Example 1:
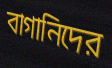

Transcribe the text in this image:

বাগানিদের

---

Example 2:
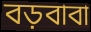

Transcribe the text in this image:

বড়বাবা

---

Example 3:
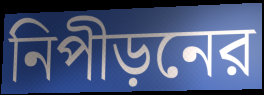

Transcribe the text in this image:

নিপীড়নের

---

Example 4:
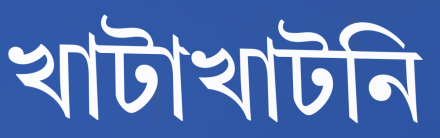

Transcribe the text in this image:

খাটাখাটনি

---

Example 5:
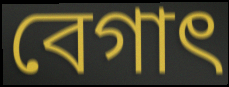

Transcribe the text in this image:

বেগাৎ